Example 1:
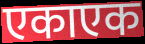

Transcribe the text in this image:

एकाएक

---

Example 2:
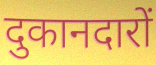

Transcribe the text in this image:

दुकानदारों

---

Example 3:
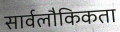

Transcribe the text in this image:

सार्वलौकिकता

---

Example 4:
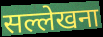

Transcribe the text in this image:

सल्लेखना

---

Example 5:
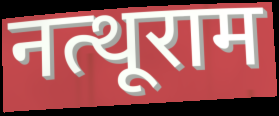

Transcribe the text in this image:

नत्थूराम